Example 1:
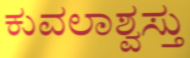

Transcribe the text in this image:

ಕುವಲಾಶ್ವಸ್ತು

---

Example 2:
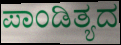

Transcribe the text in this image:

ಪಾಂಡಿತ್ಯದ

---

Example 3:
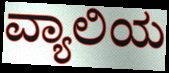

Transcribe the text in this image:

ವ್ಯಾಲಿಯ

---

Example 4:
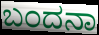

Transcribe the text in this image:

ಬಂದನಾ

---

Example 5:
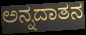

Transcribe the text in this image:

ಅನ್ನದಾತನ